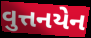
વુત્તનયેન